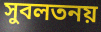
সুবলতনয়